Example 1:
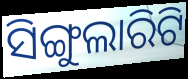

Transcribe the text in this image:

ସିଙ୍ଗୁଲାରିଟି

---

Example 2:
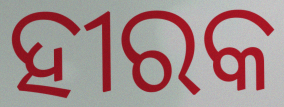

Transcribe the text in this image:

ହୀରକ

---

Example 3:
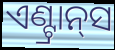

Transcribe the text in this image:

ଏଣ୍ଟ୍ରାନ୍‍ସ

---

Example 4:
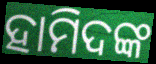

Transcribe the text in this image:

ହାମିଦଙ୍କ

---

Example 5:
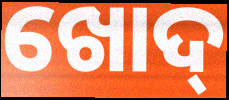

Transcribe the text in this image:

ଖୋଦ୍